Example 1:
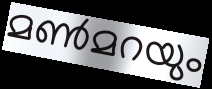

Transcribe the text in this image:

മൺമറയും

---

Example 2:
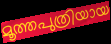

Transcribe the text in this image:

മൂത്തപുത്രിയായ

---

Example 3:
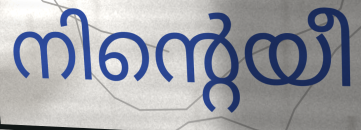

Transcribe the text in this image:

നിന്റെയീ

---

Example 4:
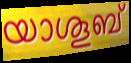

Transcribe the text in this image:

യാശൂബ്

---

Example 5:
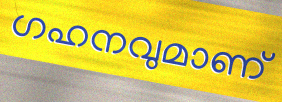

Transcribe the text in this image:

ഗഹനവുമാണ്